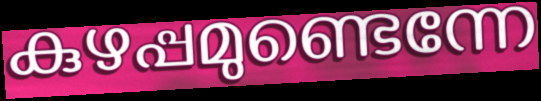
കുഴപ്പമുണ്ടെന്നേ